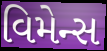
વિમેન્સ